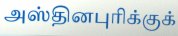
அஸ்தினபுரிக்குக்